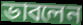
ভাবলেন